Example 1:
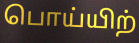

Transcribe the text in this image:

பொய்யிற்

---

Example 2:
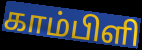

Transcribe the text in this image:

காம்பிளி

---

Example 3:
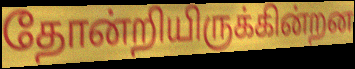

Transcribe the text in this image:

தோன்றியிருக்கின்றன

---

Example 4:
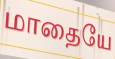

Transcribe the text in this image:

மாதையே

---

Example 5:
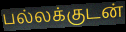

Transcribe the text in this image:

பல்லக்குடன்